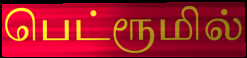
பெட்ரூமில்